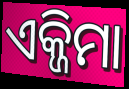
ଏକ୍ଜିମା